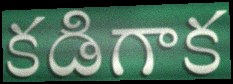
కడిగాక